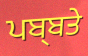
ਪਬ੍ਬਤੇ